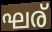
ഘര്